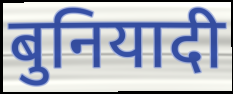
बुनियादी